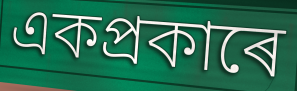
একপ্ৰকাৰে